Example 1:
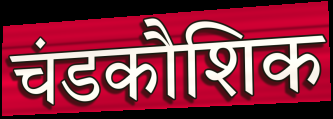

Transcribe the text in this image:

चंडकौशिक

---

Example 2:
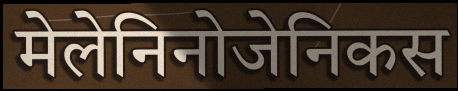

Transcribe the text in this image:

मेलेनिनोजेनिकस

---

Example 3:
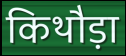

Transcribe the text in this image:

किथौड़ा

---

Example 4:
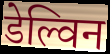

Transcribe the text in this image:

डेल्विन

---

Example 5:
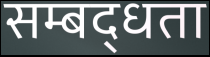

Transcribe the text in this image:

सम्‍बद्धता